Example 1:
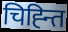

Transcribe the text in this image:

चिह्न्ति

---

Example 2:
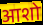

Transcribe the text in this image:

आशो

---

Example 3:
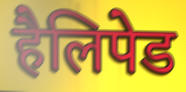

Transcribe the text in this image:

हैलिपेड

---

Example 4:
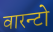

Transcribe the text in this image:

वारन्टो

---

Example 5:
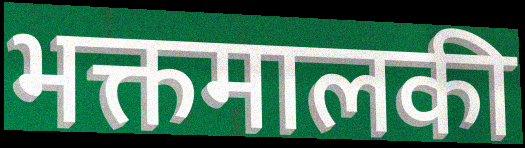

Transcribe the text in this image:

भक्तमालकी